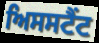
ਅਿਸਸਟੈਂਟ